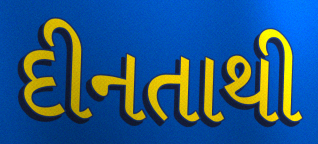
દીનતાથી